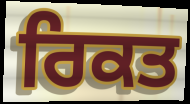
ਰਿਕਤ